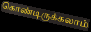
கொண்டிருக்கலாம்